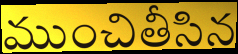
ముంచితీసిన